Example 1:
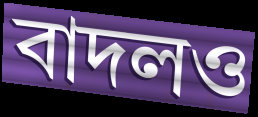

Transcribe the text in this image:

বাদলও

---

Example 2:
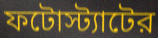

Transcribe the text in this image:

ফটোস্ট্যাটের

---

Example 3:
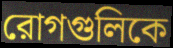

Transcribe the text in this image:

রোগগুলিকে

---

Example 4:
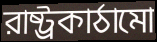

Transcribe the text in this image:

রাষ্ট্রকাঠামো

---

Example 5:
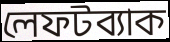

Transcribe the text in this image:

লেফটব্যাক